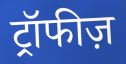
ट्रॉफीज़